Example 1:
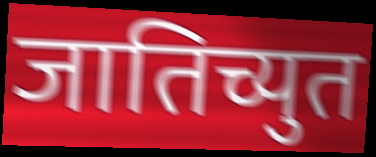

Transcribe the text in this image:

जातिच्युत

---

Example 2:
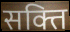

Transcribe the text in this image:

सक्ति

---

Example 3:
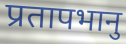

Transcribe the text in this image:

प्रतापभानु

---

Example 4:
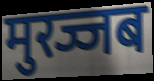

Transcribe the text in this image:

मुरज्जब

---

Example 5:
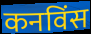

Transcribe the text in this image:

कनविंस